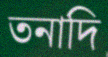
তনাদি